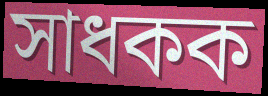
সাধকক